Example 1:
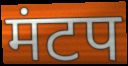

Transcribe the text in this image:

मंटप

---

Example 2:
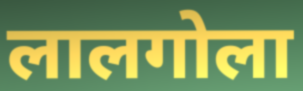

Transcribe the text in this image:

लालगोला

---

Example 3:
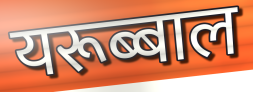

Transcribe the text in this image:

यरूब्बाल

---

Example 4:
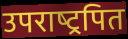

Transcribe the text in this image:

उपराष्ट्रपित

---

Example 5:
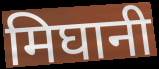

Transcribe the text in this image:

मिघानी